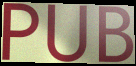
PUB